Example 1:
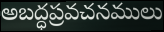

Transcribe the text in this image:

అబద్ధప్రవచనములు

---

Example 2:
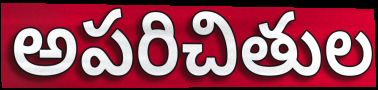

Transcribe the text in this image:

అపరిచితుల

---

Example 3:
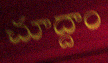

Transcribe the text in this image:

చూద్దాం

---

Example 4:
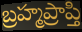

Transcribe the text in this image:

బ్రహ్మప్రాప్తి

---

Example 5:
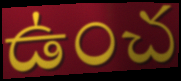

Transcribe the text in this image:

ఉంచ